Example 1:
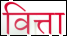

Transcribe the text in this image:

वित्ता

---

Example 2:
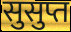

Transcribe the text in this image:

सुसुप्त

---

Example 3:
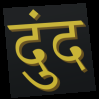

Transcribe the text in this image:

दुंद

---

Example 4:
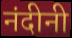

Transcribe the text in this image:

नंदीनी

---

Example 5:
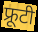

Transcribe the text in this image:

फ्रूटी